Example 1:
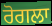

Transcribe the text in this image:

ਰੋਗਲਾ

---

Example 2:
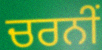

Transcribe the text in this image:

ਚਰਨੀਂ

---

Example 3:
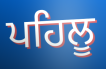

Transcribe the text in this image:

ਪਹਿਲੂ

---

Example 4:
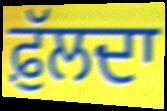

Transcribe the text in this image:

ਫ਼ੁੱਲਦਾ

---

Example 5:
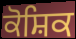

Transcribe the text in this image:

ਕੋਸ਼ਿਕ